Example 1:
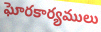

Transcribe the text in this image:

ఘోరకార్యములు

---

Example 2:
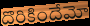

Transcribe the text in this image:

దొరికిందేమో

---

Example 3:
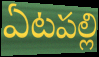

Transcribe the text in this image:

ఏటపల్లి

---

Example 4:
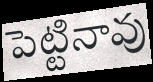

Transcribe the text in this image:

పెట్టినావు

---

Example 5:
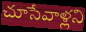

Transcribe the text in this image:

చూసేవాళ్లని